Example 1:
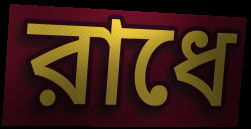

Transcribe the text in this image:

রাধে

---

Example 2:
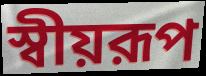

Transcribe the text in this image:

স্বীয়রূপ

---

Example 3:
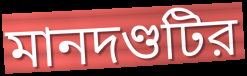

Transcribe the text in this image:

মানদণ্ডটির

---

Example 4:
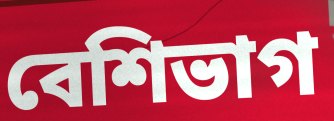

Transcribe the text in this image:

বেশিভাগ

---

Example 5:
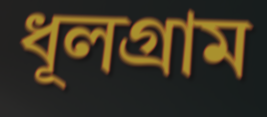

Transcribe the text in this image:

ধূলগ্রাম